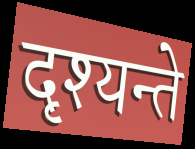
दृश्यन्ते